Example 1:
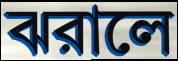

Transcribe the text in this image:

ঝরালে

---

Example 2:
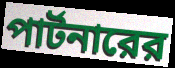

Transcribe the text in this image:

পার্টনারের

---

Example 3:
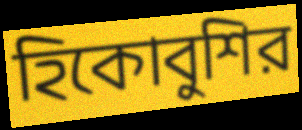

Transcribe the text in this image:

হিকোবুশির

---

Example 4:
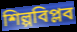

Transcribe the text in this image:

শিল্পবিপ্লব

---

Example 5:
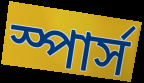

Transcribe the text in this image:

স্পার্স